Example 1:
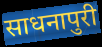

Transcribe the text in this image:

साधनापुरी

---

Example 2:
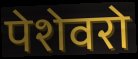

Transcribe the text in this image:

पेशेवरो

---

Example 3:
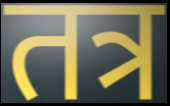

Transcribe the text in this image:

तत्र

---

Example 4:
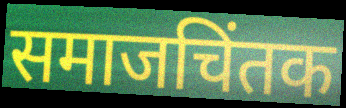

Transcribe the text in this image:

समाजचिंतक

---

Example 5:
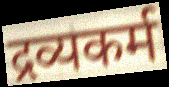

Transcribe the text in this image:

द्रव्यकर्म